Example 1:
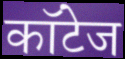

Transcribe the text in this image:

कॉटेज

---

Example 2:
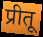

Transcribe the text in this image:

प्रीतू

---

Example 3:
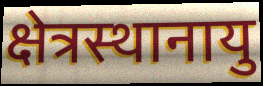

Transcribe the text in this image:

क्षेत्रस्थानायु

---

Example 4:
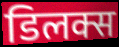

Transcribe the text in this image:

डिलक्स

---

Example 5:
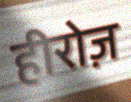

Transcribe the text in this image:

हीरोज़